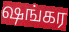
ஷங்கர